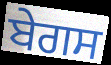
ਬੇਗਸ